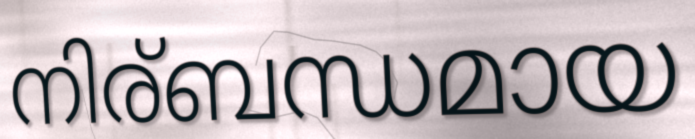
നിര്ബന്ധമായ